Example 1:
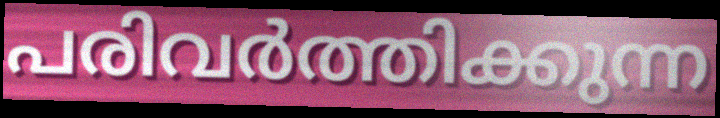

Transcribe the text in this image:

പരിവർത്തിക്കുന്ന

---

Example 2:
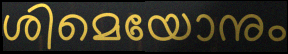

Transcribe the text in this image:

ശിമെയോനും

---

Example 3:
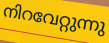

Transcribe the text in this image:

നിറവേറ്റുന്നു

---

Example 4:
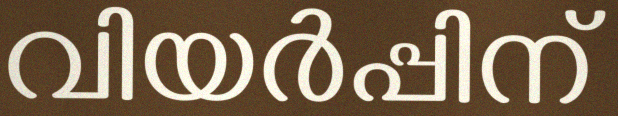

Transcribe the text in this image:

വിയർപ്പിന്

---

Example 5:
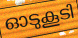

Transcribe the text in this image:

ഓടുകൂടി